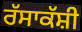
ਰੱਸਾਕੱਸ਼ੀ